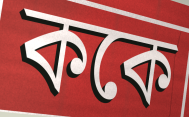
ককে